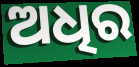
ଅଧିର